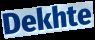
Dekhte